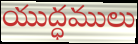
యుద్ధములు